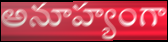
అనూహ్యంగా